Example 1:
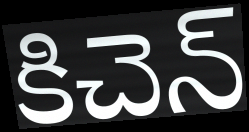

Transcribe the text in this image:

కిచెన్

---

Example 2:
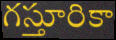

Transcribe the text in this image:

గస్తూరికా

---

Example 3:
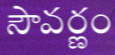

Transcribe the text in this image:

సౌవర్ణం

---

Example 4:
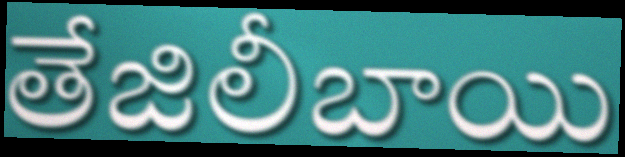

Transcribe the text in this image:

తేజిలీబాయి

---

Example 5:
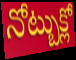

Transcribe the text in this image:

నోట్బుక్లో